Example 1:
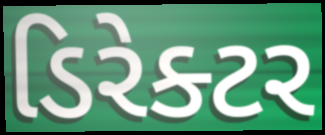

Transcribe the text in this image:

ડિરેક્ટર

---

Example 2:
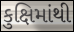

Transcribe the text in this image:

કુક્ષિમાંથી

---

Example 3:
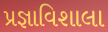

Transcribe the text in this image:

પ્રજ્ઞાવિશાલા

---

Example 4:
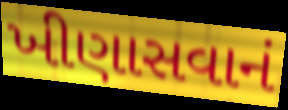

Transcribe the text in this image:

ખીણાસવાનં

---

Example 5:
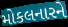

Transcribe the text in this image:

મોકલનારને